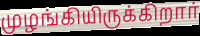
முழங்கியிருக்கிறார்